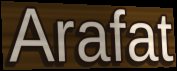
Arafat